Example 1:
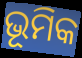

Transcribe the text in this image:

ଭୂମିକ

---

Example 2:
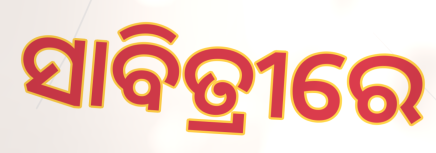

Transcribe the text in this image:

ସାବିତ୍ରୀରେ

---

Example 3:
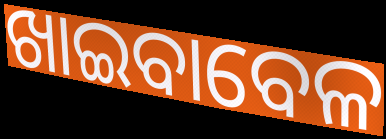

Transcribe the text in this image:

ଖାଇବାବେଳ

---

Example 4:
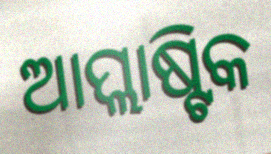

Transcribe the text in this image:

ଆପ୍ଲାଷ୍ଟିକ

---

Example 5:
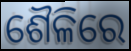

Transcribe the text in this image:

ଶୈଳିରେ